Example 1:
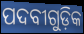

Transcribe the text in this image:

ପଦବୀଗୁଡ଼ିକ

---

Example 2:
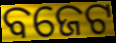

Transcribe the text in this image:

ବଜେଟ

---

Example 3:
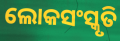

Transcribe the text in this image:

ଲୋକସଂସ୍କୃତି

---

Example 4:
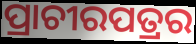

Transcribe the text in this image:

ପ୍ରାଚୀରପତ୍ରର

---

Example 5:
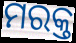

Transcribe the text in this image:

ମରକ୍ତ